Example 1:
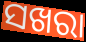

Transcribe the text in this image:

ସଖରା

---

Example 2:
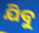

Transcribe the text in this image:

ଯିବୁ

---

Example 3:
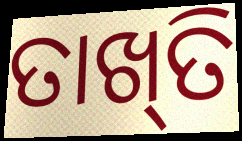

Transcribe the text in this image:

ତାଖ୍‍ତି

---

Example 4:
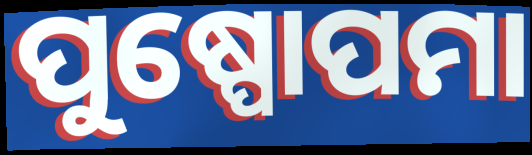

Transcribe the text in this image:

ପୁଷ୍ପୋପମା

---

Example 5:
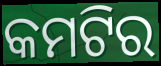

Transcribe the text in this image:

କମଟିର